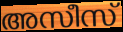
അസീസ്